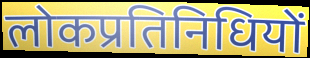
लोकप्रतिनिधियों